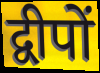
द्वीपों